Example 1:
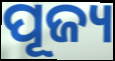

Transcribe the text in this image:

ପୂଜ୍ୟ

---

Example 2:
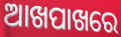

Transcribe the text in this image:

ଆଖପାଖରେ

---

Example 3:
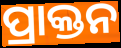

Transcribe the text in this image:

ପ୍ରାକ୍ତନ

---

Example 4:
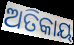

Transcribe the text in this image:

ଅତିକାୟ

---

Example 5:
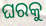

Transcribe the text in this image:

ଘରକୁ